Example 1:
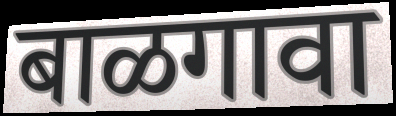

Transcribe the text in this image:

बाळगावा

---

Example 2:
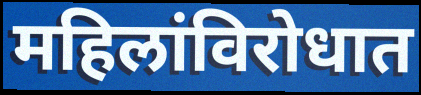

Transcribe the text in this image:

महिलांविरोधात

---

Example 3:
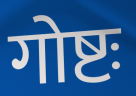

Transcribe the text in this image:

गोष्टः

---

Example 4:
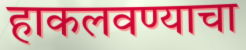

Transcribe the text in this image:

हाकलवण्याचा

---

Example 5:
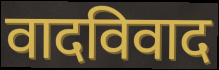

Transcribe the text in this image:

वादविवाद